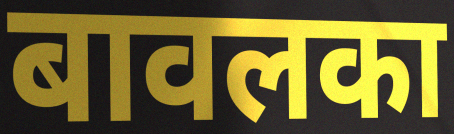
बावलका